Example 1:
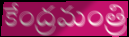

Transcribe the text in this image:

కేంద్రమంత్రి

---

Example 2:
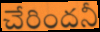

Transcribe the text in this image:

చేరిందనీ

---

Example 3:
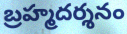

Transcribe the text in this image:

బ్రహ్మదర్శనం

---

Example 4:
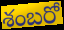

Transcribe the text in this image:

శంబరో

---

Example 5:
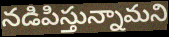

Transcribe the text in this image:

నడిపిస్తున్నామని